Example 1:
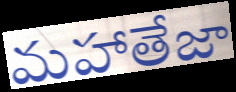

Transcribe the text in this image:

మహాతేజా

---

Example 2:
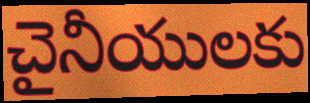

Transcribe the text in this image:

చైనీయులకు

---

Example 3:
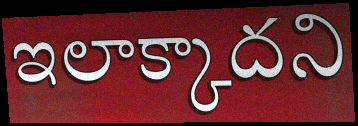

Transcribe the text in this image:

ఇలాక్కాదని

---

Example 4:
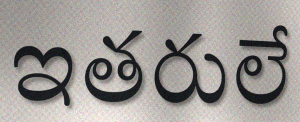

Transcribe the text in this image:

ఇతరులే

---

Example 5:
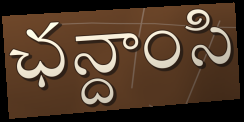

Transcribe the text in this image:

ఛన్దాంసి